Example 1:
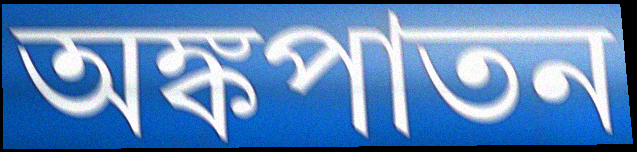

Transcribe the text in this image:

অঙ্কপাতন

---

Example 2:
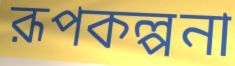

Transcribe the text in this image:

রূপকল্পনা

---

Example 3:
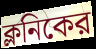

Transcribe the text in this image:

ক্লনিকের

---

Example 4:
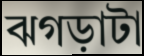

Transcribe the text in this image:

ঝগড়াটা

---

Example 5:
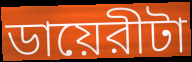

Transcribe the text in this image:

ডায়েরীটা